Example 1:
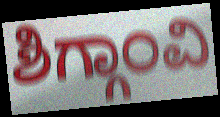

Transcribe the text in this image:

ಶಿಗ್ಗಾಂವಿ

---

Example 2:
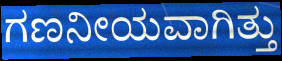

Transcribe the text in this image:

ಗಣನೀಯವಾಗಿತ್ತು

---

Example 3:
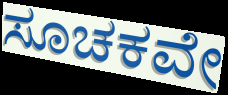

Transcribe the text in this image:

ಸೂಚಕವೇ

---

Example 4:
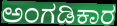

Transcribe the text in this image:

ಅಂಗಡಿಕಾರ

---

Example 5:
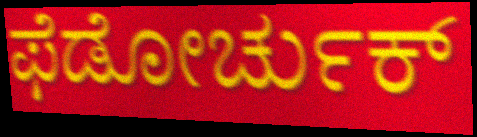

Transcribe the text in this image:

ಫೆಡೋರ್ಚುಕ್